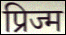
प्रिज्म